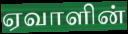
ஏவாளின்